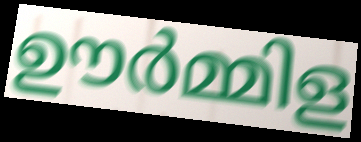
ഊർമ്മിള